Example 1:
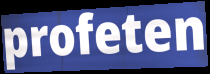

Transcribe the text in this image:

profeten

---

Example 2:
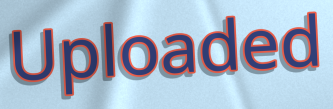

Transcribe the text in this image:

Uploaded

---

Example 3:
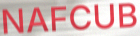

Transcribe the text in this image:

NAFCUB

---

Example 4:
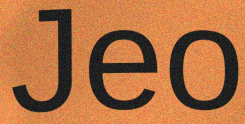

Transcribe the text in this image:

Jeo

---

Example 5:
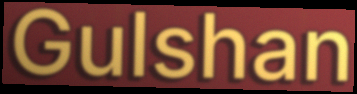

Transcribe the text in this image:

Gulshan